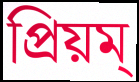
প্রিয়ম্